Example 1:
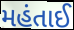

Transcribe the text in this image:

મહંતાઈ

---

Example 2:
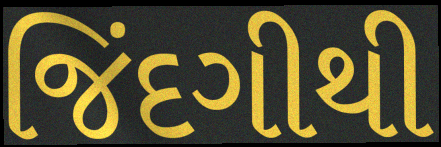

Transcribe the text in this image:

જિંદગીથી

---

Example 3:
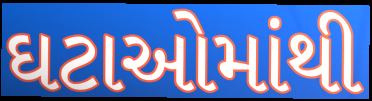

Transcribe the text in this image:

ઘટાઓમાંથી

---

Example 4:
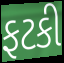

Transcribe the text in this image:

ફટકી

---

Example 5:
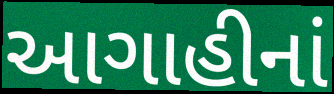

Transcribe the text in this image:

આગાહીનાં